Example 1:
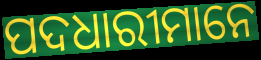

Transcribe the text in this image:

ପଦଧାରୀମାନେ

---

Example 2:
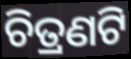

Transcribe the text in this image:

ଚିତ୍ରଣଟି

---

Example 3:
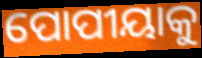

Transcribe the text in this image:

ପୋପୀୟାକୁ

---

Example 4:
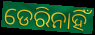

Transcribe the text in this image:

ଡେରିନାହିଁ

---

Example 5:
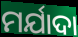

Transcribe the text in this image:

ମର୍ଯାଦା